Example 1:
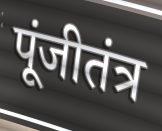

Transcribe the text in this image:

पूंजीतंत्र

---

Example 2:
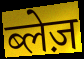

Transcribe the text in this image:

ब्लेज़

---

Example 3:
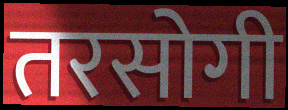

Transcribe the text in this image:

तरसोगी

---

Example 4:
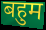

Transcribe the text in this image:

बहुम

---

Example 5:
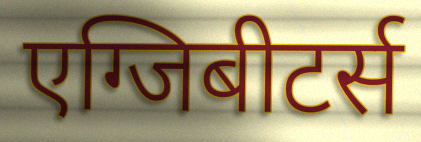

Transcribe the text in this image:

एग्जिबीटर्स